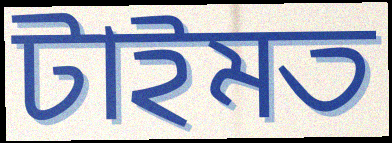
টাইমত